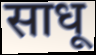
साधू